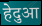
हेदुआ